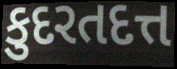
કુદરતદત્ત